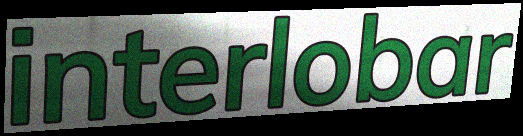
interlobar